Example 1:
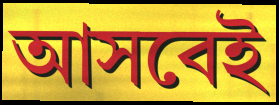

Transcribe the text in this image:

আসবেই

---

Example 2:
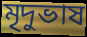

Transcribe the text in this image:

মৃদুভাষ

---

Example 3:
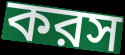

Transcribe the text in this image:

করস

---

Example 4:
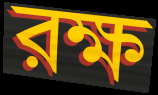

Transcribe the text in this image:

রক্ষ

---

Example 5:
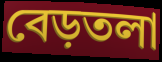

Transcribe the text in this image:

বেড়তলা